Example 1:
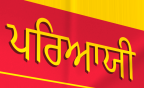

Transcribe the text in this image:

ਪਰਿਆਯੀ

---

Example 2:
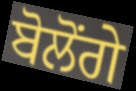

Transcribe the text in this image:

ਬੋਲੋਂਗੇ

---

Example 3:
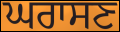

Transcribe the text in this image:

ਘਰਾਸਣ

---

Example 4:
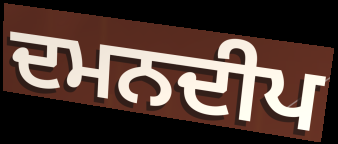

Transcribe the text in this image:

ਦਮਨਦੀਪ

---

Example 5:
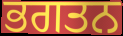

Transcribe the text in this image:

ਭਗਤਨ